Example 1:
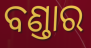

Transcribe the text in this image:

ବଣ୍ଡାର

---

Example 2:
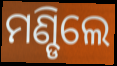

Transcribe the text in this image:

ମଣ୍ଡିଲେ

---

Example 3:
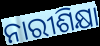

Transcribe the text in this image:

ନାରୀଶିକ୍ଷା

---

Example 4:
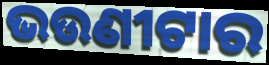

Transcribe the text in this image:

ଭଉଣୀଟାର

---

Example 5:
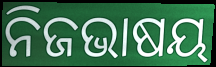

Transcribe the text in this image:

ନିଜଭାଷୟ